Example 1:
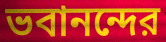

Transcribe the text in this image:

ভবানন্দের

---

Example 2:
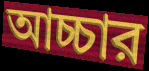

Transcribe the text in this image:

আচ্চার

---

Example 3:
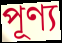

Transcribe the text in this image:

পূণ্য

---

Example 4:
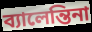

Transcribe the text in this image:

ব্যালেন্তিনা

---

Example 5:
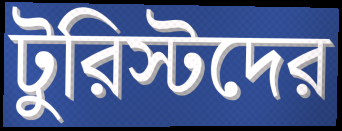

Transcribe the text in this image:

টুরিস্টদের